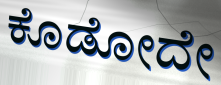
ಕೊಡೋದೇ